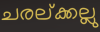
ചരല്ക്കല്ലു